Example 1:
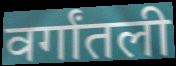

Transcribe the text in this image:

वर्गांतली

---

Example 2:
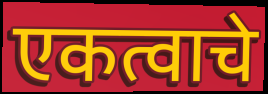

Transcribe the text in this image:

एकत्वाचे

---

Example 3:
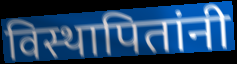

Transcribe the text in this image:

विस्थापितांनी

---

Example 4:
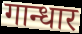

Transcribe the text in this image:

गान्धार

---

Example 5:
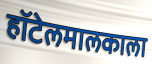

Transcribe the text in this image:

हॉटेलमालकाला